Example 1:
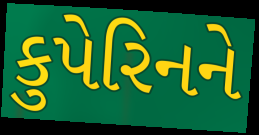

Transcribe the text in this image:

કુપેરિનને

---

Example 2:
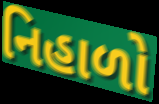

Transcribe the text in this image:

નિહાળો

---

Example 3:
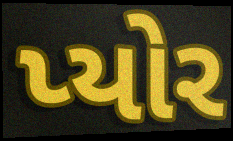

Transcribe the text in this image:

પ્યોર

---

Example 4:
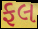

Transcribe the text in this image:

ફલ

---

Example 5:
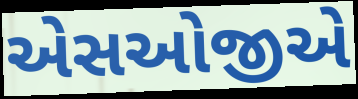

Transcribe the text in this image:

એસઓજીએ